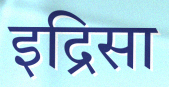
इद्रिसा